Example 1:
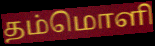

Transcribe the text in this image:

தம்மொளி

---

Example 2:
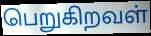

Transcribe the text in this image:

பெறுகிறவள்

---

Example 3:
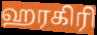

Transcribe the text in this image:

ஹரகிரி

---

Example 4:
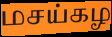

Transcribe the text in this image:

மசய்கழ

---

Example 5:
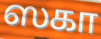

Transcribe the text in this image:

ஸகா